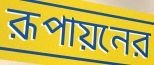
রূপায়নের